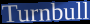
Turnbull